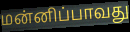
மன்னிப்பாவது